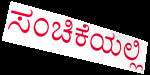
ಸಂಚಿಕೆಯಲ್ಲಿ